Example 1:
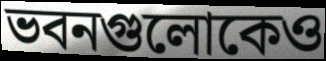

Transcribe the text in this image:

ভবনগুলোকেও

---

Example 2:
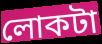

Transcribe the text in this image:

লোকটা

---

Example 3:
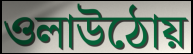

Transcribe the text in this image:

ওলাউঠোয়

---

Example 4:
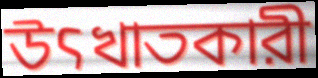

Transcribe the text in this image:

উৎখাতকারী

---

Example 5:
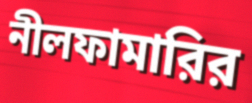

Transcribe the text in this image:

নীলফামারির